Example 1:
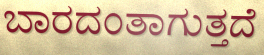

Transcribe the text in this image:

ಬಾರದಂತಾಗುತ್ತದೆ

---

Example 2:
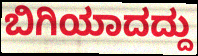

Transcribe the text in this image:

ಬಿಗಿಯಾದದ್ದು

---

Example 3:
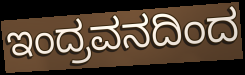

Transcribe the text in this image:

ಇಂದ್ರವನದಿಂದ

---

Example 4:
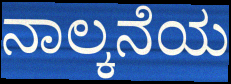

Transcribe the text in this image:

ನಾಲ್ಕನೆಯ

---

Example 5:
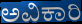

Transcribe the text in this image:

ಅವಿಕಾರಿ